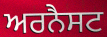
ਅਰਨੈਸਟ